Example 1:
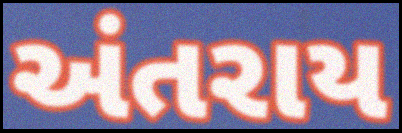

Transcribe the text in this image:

અંતરાય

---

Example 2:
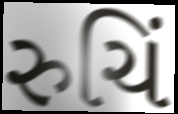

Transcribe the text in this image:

રુચિં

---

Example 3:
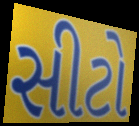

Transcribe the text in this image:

સીટો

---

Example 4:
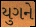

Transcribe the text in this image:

યુગને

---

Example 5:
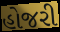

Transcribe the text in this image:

હોજરી